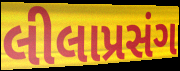
લીલાપ્રસંગ